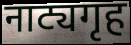
नाट्यगृह